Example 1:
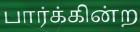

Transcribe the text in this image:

பார்க்கின்ற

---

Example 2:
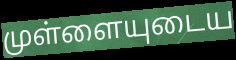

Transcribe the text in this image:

முள்ளையுடைய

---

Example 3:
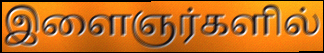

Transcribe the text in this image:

இளைஞர்களில்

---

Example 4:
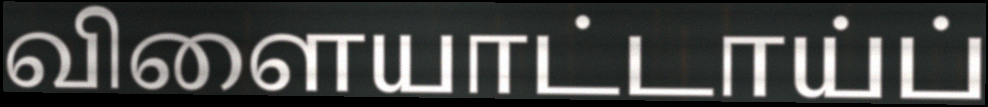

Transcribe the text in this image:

விளையாட்டாய்ப்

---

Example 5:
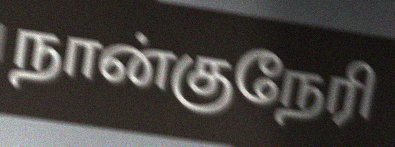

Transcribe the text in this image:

நான்குநேரி